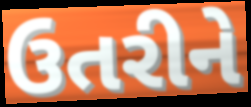
ઉતરીને